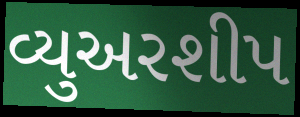
વ્યુઅરશીપ